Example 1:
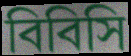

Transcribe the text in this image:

বিবিসি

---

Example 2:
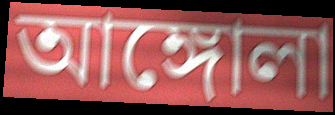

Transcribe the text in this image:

আঙ্গোলা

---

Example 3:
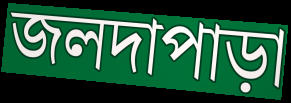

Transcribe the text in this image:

জলদাপাড়া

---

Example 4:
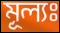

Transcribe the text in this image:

মূল্যঃ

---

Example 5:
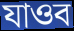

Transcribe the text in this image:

যাওব